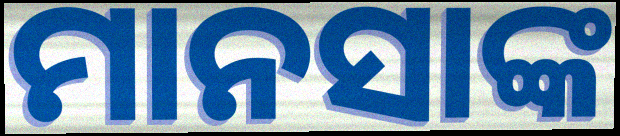
ମାନସାଙ୍କ